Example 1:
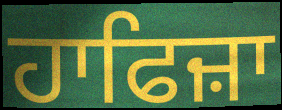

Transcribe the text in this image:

ਹਾਫਿਜ਼ਾ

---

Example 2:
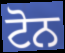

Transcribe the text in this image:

ਟੋਨ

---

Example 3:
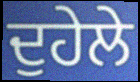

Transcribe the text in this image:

ਦੁਹੇਲੇ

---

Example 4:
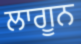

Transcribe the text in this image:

ਲਾਗੂਨ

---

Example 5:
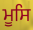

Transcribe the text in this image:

ਮੂਸਿ